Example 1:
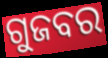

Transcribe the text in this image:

ଗୁଜବର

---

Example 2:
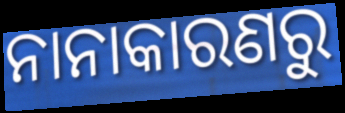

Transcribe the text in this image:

ନାନାକାରଣରୁ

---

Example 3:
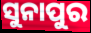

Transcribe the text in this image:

ସୁନାପୁର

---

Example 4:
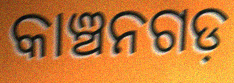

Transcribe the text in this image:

କାଞ୍ଚନଗଡ଼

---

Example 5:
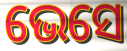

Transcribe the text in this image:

ଭେସେ